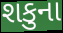
શકુના